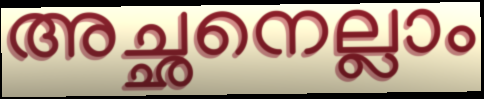
അച്ഛനെല്ലാം